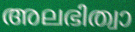
അലഭിത്വാ